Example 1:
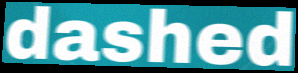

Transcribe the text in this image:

dashed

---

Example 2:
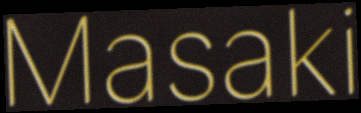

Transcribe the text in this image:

Masaki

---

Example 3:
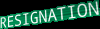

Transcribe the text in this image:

RESIGNATION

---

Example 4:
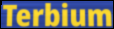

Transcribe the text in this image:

Terbium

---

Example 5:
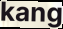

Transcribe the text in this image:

kang